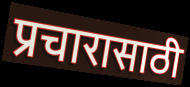
प्रचारासाठी